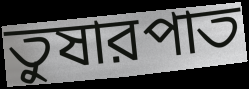
তুষারপাত